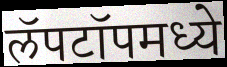
लॅपटॉपमध्ये